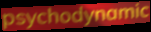
psychodynamic